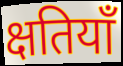
क्षतियाँ